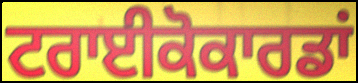
ਟਰਾਈਕੋਕਾਰਡਾਂ